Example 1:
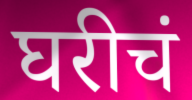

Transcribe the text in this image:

घरीचं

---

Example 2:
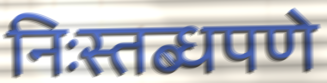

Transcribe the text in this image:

निःस्तब्धपणे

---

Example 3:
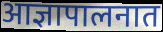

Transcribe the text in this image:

आज्ञापालनात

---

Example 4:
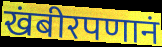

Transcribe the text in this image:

खंबीरपणानं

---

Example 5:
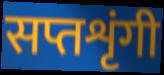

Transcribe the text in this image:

सप्तशृंगी